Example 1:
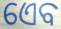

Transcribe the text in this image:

ଏେବ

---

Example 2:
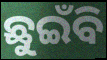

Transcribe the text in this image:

ଛୁଇଁବି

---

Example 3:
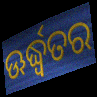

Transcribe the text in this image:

ଊର୍ଦ୍ଧ୍ଵତର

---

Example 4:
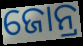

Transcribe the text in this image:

ଜୋନ୍ର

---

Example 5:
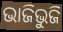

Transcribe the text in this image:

ଭାଜିଭୁଜି